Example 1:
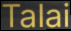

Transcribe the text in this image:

Talai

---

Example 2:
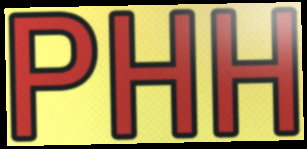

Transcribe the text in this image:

PHH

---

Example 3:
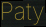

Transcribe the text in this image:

Paty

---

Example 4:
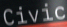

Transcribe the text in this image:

Civic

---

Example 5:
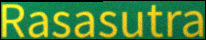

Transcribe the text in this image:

Rasasutra